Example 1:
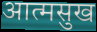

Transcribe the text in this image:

आत्मसुख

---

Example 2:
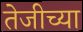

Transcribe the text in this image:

तेजीच्या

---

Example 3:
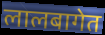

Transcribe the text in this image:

लालबागेत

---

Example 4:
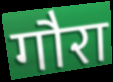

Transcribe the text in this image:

गौरा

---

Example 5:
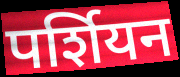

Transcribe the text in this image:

पर्शियन